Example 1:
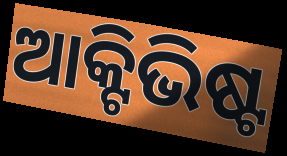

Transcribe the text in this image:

ଆକ୍ଟିଭିଷ୍ଟ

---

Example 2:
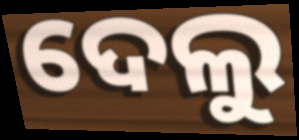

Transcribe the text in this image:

ଦେଲୁ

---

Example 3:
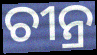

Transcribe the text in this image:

ଚୀନ୍ର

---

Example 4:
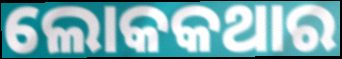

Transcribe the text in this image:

ଲୋକକଥାର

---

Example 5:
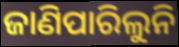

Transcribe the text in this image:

ଜାଣିପାରିଲୁନି